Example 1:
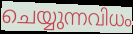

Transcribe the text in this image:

ചെയ്യുന്നവിധം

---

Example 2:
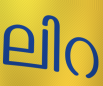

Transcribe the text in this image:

ലിറ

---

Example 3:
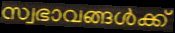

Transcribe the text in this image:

സ്വഭാവങ്ങൾക്ക്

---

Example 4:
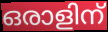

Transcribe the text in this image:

ഒരാളിന്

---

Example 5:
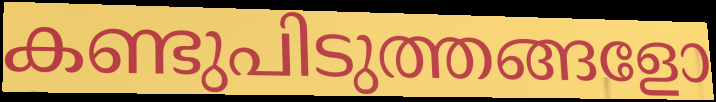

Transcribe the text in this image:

കണ്ടുപിടുത്തങ്ങളോ